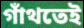
গাঁথতেই